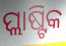
ପ୍ଲାଷ୍ଟିକ